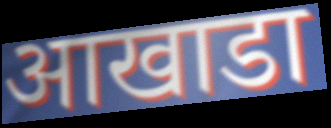
आखाडा